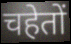
चहेतों